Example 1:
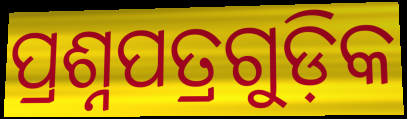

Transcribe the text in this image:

ପ୍ରଶ୍ନପତ୍ରଗୁଡ଼ିକ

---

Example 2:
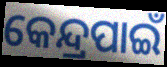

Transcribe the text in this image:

କେନ୍ଦ୍ରପାଇଁ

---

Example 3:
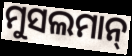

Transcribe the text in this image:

ମୁସଲମାନ୍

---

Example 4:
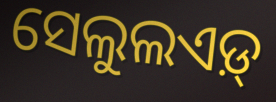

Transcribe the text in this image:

ସେଲୁଲଏଡ଼୍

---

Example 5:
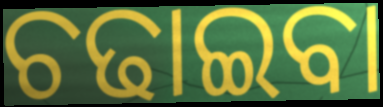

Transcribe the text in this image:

ଚଢାଇବା